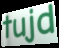
tujd